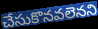
చేసుకొనవలెనని